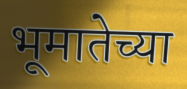
भूमातेच्या